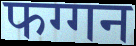
फग्गन